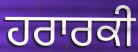
ਹਰਾਰਕੀ